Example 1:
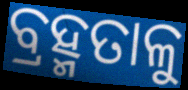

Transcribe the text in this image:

ବ୍ରହ୍ମତାଳୁ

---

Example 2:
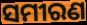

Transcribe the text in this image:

ସମୀରଣ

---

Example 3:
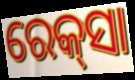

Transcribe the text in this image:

ରେକ୍‍ସା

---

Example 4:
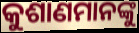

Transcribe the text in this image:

କୁଶାଣମାନଙ୍କୁ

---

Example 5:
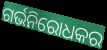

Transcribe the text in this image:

ଗର୍ଭନିରୋଧକର